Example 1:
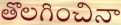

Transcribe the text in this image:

తొలగించినా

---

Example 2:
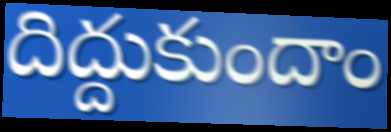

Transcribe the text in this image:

దిద్దుకుందాం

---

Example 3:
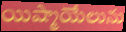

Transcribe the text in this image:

యిష్మాయేలును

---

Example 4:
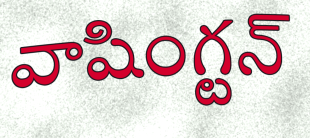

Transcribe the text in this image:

వాషింగ్టన్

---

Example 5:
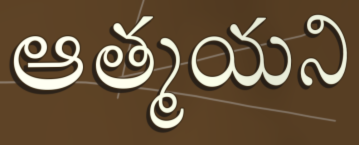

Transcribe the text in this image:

ఆత్మయని